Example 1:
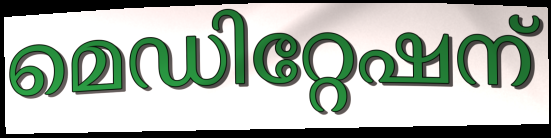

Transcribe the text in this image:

മെഡിറ്റേഷന്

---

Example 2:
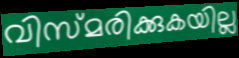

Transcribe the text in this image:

വിസ്മരിക്കുകയില്ല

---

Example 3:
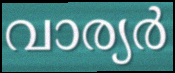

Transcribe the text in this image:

വാര്യർ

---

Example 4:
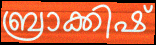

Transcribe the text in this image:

ബ്രാക്കിഷ്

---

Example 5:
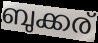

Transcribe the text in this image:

ബുക്കര്